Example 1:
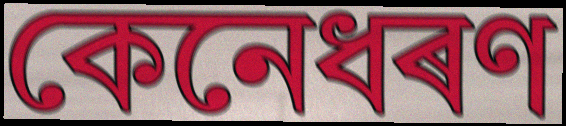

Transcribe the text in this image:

কেনেধৰণ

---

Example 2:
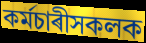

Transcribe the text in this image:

কৰ্মচাৰীসকলক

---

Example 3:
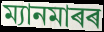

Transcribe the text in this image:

ম্যানমাৰৰ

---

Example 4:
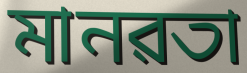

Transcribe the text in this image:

মানৱতা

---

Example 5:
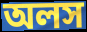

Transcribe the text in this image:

অলস